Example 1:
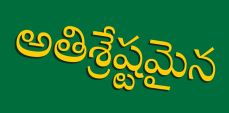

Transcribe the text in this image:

అతిశ్రేష్టమైన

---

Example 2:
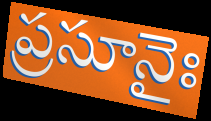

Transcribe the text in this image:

ప్రసూనైః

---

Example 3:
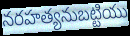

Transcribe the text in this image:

నరహత్యనుబట్టియు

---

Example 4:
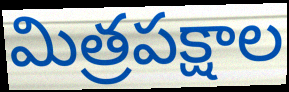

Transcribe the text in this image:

మిత్రపక్షాల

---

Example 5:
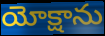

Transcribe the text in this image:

యోక్షాను